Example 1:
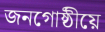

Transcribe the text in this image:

জনগোষ্ঠীয়ে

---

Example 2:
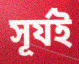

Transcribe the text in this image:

সূৰ্যই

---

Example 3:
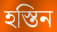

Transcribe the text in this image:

হস্তিন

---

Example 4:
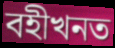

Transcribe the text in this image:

বহীখনত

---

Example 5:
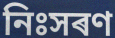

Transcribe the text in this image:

নিঃসৰণ